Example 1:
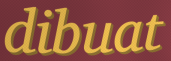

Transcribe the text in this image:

dibuat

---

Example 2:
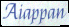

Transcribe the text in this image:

Aiappan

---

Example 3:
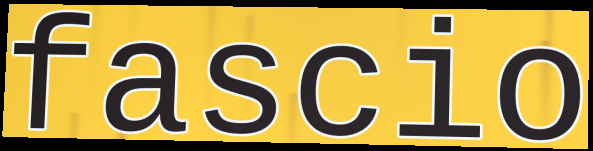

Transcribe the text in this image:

fascio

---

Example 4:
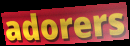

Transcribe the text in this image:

adorers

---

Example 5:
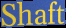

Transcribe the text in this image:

Shaft